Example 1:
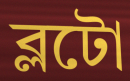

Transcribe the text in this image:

ব্লটো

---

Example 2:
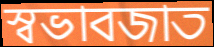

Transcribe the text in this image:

স্বভাবজাত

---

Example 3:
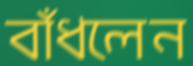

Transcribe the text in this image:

বাঁধলেন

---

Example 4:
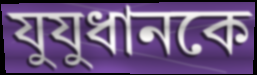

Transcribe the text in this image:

যুযুধানকে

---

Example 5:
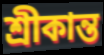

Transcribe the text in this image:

শ্রীকান্ত